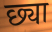
छ्या